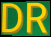
DR